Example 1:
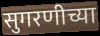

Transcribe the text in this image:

सुगरणीच्या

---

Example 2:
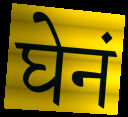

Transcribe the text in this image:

घेनं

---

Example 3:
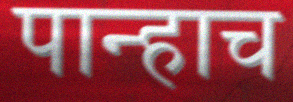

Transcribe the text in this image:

पान्हाच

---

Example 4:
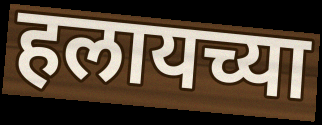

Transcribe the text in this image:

हलायच्या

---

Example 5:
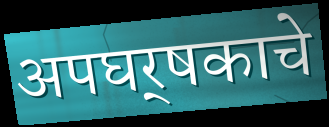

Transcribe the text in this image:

अपघर्षकाचे